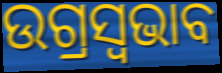
ଉଗ୍ରସ୍ୱଭାବ